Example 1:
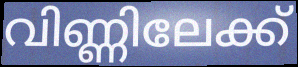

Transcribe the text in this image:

വിണ്ണിലേക്ക്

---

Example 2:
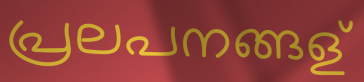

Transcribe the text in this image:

പ്രലപനങ്ങള്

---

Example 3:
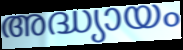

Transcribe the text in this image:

അദ്ധ്യായം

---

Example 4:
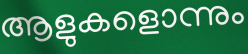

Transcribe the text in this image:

ആളുകളൊന്നും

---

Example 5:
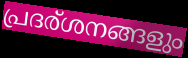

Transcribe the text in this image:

പ്രദര്ശനങ്ങളും